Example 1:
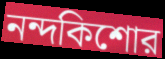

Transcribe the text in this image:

নন্দকিশোর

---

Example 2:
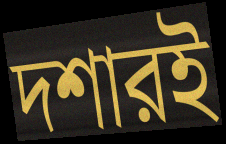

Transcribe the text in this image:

দশারই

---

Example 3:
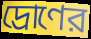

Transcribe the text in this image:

দ্রোণের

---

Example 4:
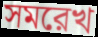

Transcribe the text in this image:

সমরেখ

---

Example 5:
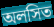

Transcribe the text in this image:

অলসিত